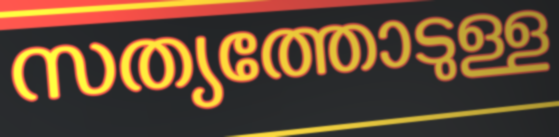
സത്യത്തോടുള്ള